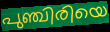
പുഞ്ചിരിയെ